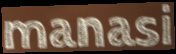
manasi